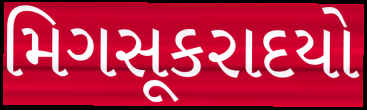
મિગસૂકરાદયો